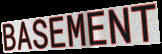
BASEMENT